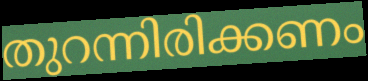
തുറന്നിരിക്കണം